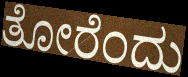
ತೋರೆಂದು